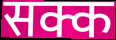
सक्क